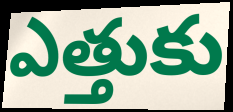
ఎత్తుకు